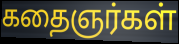
கதைஞர்கள்